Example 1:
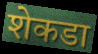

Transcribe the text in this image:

शेकडा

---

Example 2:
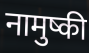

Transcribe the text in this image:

नामुष्की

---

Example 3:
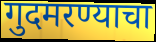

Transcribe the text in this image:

गुदमरण्याचा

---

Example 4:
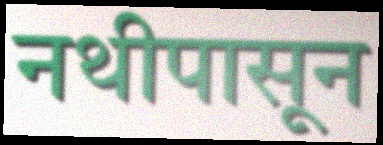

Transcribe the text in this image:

नथीपासून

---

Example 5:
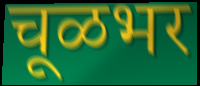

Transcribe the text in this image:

चूळभर